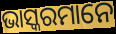
ଭାସ୍କରମାନେ